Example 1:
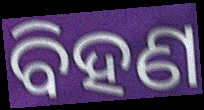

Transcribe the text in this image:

ବିହଣ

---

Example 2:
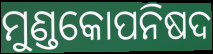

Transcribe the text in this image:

ମୁଣ୍ଡକୋପନିଷଦ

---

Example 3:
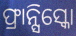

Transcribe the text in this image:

ଫ୍ରାନ୍ସିସ୍କୋ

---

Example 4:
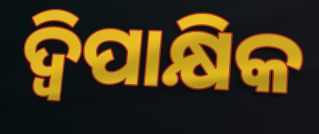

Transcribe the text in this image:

ଦ୍ବିପାକ୍ଷିକ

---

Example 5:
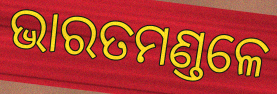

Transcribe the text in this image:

ଭାରତମଣ୍ଡଳେ